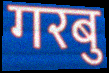
गरबु